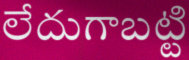
లేదుగాబట్టి